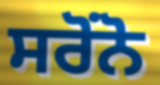
ਸਰੋਂਨੋ